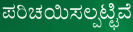
ಪರಿಚಯಿಸಲ್ಪಟ್ಟಿವೆ